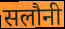
सलौनी